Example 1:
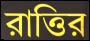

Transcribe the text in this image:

রাত্তির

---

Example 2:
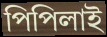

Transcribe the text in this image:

পিপিলাই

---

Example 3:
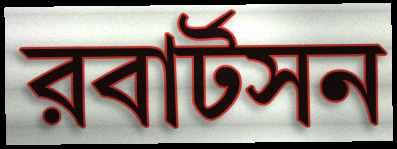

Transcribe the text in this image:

রবার্টসন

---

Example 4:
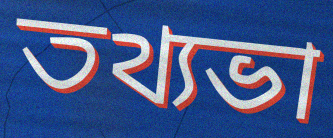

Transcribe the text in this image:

তথ্যভা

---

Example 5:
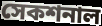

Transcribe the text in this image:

সেকশনাল